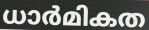
ധാർമികത